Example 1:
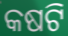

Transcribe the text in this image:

କଷଟି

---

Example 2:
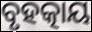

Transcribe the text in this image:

ବୃହତ୍କାୟ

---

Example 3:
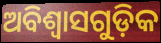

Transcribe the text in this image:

ଅବିଶ୍ଵାସଗୁଡ଼ିକ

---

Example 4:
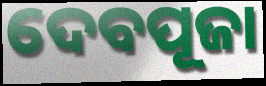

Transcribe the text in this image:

ଦେବପୂଜା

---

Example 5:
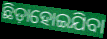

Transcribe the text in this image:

ଛିଡ଼ାହୋଇଯିବା